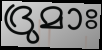
ദ്രുമാഃ